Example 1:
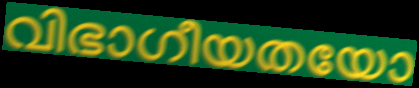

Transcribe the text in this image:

വിഭാഗീയതയോ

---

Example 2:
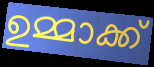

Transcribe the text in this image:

ഉമ്മാക്ക്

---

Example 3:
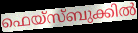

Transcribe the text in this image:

ഫെയ്സ്ബുക്കിൽ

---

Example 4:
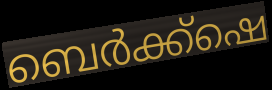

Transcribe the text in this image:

ബെർക്ക്ഷെ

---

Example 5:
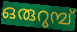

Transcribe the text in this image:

ഒരുറുമ്പ്